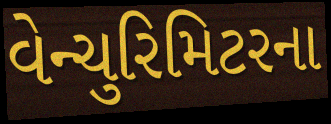
વેન્ચુરિમિટરના